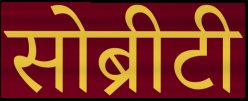
सोब्रीटी